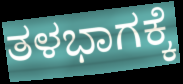
ತಳಭಾಗಕ್ಕೆ